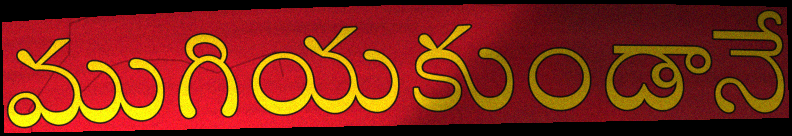
ముగియకుండానే